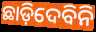
ଛାଡ଼ିଦେବିନି